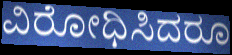
ವಿರೋಧಿಸಿದರೂ